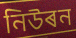
নিউৰন